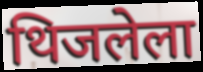
थिजलेला